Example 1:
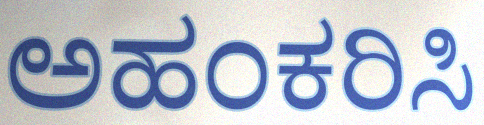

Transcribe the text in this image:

ಅಹಂಕರಿಸಿ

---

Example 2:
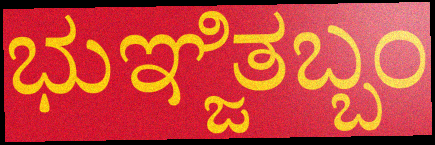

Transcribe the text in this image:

ಭುಞ್ಜಿತಬ್ಬಂ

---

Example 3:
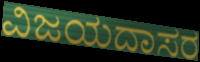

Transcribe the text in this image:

ವಿಜಯದಾಸರ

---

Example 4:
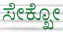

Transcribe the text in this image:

ಸೇಕ್ಖೋ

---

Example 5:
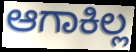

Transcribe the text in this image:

ಆಗಾಕಿಲ್ಲ